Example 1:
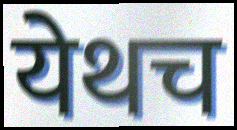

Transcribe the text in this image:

येथच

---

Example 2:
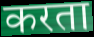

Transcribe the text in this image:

करता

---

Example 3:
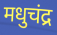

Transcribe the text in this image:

मधुचंद्र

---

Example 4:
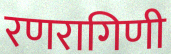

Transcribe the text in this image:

रणरागिणी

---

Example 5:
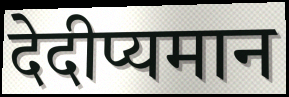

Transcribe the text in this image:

देदीप्यमान